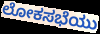
ಲೋಕಸಭೆಯು